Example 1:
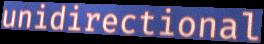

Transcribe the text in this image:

unidirectional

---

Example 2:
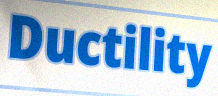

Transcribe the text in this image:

Ductility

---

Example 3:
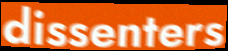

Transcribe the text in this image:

dissenters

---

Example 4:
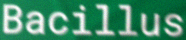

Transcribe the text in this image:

Bacillus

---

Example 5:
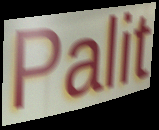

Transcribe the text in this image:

Palit